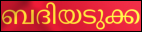
ബദിയടുക്ക